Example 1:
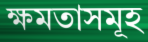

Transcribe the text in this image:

ক্ষমতাসমূহ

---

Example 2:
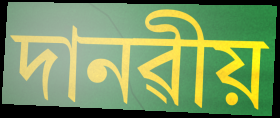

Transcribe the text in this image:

দানৱীয়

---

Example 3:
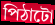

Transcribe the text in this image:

পিঠাটো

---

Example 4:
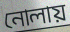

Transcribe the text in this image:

নোলায়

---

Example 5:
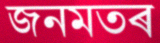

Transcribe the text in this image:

জনমতৰ